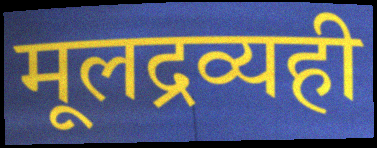
मूलद्रव्यही